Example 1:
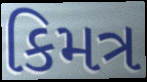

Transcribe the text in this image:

કિમત્ર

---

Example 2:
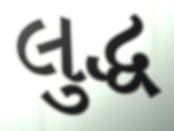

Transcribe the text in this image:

લુદ્ધ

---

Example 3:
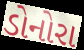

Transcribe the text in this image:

ડોનોરા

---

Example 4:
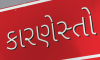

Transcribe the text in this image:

કારણેસ્તો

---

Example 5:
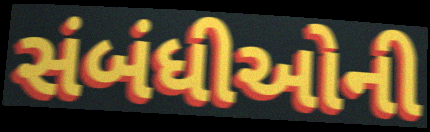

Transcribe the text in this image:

સંબંધીઓની